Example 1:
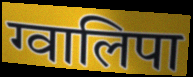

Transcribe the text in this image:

ग्वालिपा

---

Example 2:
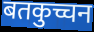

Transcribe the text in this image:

बतकुच्चन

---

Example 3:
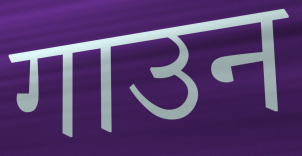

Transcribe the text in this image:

गाउन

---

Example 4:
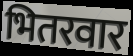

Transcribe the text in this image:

भितरवार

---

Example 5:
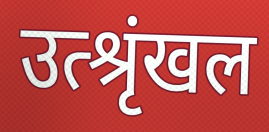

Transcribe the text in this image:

उत्श्रृंखल